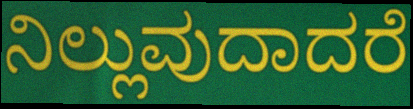
ನಿಲ್ಲುವುದಾದರೆ